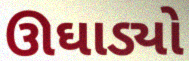
ઊઘાડ્યો